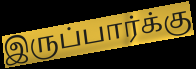
இருப்பார்க்கு